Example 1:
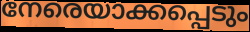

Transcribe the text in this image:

നേരെയാക്കപ്പെടും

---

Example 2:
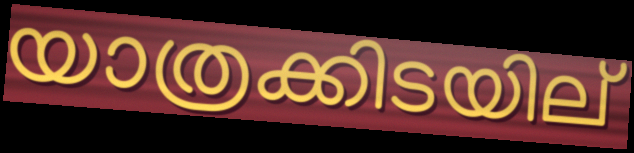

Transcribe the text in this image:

യാത്രക്കിടയില്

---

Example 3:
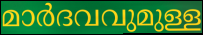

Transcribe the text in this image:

മാർദവവുമുള്ള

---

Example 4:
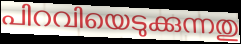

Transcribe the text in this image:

പിറവിയെടുക്കുന്നതു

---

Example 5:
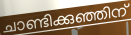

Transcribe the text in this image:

ചാണ്ടിക്കുഞ്ഞിന്